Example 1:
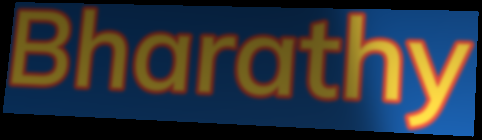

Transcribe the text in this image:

Bharathy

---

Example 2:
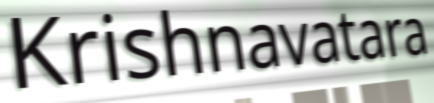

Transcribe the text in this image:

Krishnavatara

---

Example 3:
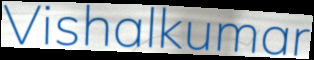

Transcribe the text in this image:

Vishalkumar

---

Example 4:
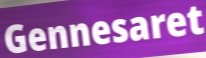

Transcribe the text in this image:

Gennesaret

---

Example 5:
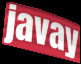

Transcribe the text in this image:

javay